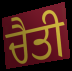
ਚੈਤੀ